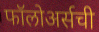
फॉलोअर्सची